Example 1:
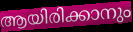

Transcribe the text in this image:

ആയിരിക്കാനും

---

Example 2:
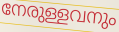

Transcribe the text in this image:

നേരുള്ളവനും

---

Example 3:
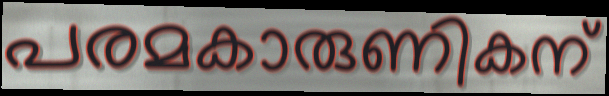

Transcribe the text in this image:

പരമകാരുണികന്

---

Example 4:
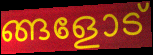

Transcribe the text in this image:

ങ്ങളോട്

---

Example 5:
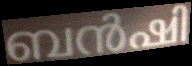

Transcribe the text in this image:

ബൻഷി